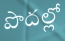
పొదల్లో